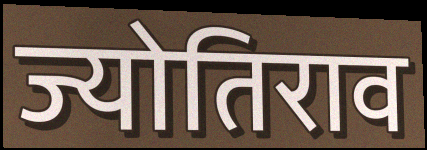
ज्योतिराव